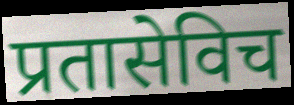
प्रतासेविच